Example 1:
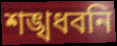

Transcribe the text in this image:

শঙ্খধবনি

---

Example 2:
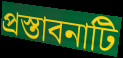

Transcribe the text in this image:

প্রস্তাবনাটি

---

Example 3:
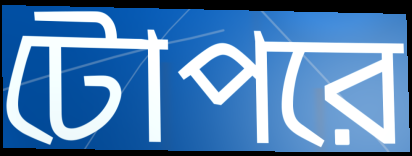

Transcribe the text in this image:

টোপরে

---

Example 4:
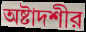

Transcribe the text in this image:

অষ্টাদশীর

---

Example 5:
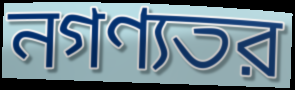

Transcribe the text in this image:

নগণ্যতর